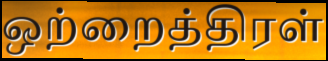
ஒற்றைத்திரள்